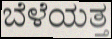
ಬೆಳೆಯತ್ತ